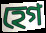
হেগ